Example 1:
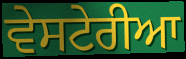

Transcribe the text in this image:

ਵੇਸਟੇਰੀਆ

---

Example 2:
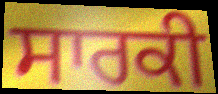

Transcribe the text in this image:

ਸਾਰਕੀ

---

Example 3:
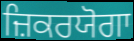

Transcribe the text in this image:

ਜ਼ਿਕਰਯੋਗਾ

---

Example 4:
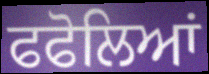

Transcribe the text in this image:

ਫਫੋਲਿਆਂ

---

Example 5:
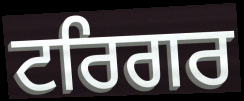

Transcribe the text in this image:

ਟਰਿਗਰ